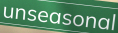
unseasonal